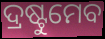
ଦ୍ରଷ୍ଟୁମେବ